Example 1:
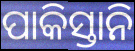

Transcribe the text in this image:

ପାକିସ୍ତାନି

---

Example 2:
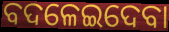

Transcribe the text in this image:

ବଦଳେଇଦେବା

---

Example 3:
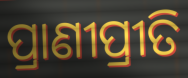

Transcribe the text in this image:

ପ୍ରାଣୀପ୍ରୀତି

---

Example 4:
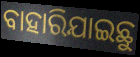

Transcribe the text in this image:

ବାହାରିଯାଇଛୁ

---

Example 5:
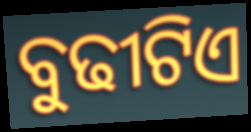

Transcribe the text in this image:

ବୁଢୀଟିଏ